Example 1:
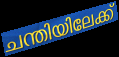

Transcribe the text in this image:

ചന്തിയിലേക്ക്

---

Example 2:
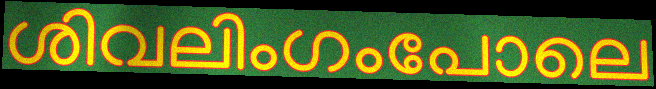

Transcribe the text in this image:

ശിവലിംഗംപോലെ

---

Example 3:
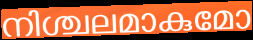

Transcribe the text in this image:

നിശ്ചലമാകുമോ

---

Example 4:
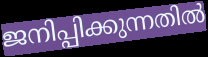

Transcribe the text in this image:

ജനിപ്പിക്കുന്നതിൽ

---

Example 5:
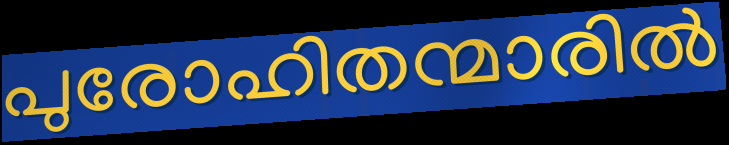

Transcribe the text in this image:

പുരോഹിതന്മാരിൽ